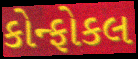
કોન્ફોકલ